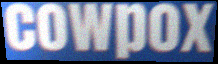
cowpox